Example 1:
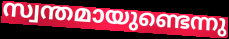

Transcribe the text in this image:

സ്വന്തമായുണ്ടെന്നു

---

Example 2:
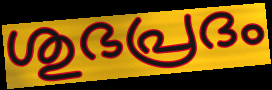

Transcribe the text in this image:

ശുഭപ്രദം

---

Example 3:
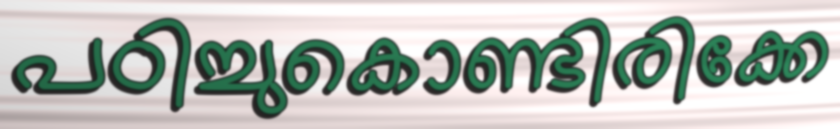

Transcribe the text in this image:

പഠിച്ചുകൊണ്ടിരിക്കേ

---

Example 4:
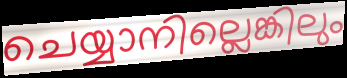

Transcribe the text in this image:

ചെയ്യാനില്ലെങ്കിലും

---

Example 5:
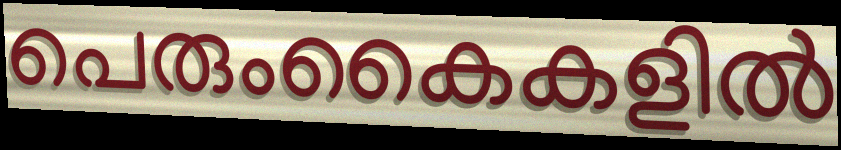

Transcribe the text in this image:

പെരുംകൈകളിൽ